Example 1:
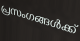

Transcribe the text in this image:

പ്രസംഗങ്ങൾക്ക്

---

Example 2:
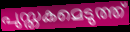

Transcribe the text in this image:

പുസ്തകമെടുത്ത്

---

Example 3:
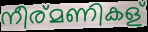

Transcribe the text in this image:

നീര്മണികള്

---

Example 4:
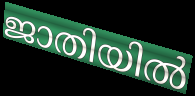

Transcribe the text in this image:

ജാതിയിൽ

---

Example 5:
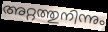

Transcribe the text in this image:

അറ്റത്തുനിന്നും